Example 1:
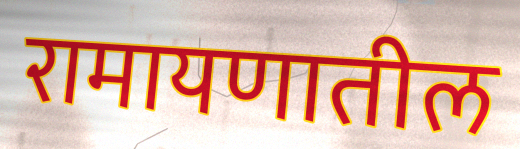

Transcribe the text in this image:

रामायणातील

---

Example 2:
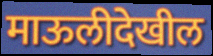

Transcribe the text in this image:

माऊलीदेखील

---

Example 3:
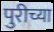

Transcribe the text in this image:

पुरीच्या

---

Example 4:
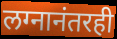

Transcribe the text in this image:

लग्नानंतरही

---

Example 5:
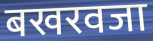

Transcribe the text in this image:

बखरवजा